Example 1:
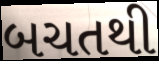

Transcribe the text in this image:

બચતથી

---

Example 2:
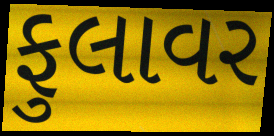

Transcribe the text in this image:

ફુલાવર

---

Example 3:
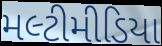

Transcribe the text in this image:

મલ્ટીમીડિયા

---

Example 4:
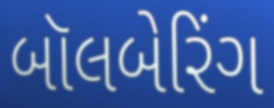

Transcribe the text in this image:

બૉલબેરિંગ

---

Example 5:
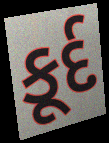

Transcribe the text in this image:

કૂર્દ